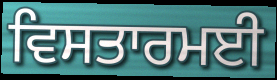
ਵਿਸਤਾਰਮਈ